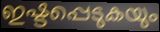
ഇഷ്ടപ്പെടുകയും